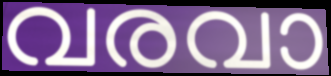
വരവാ